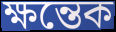
ক্ষন্তেক